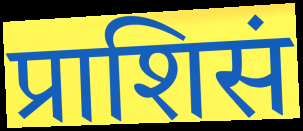
प्राशिसं